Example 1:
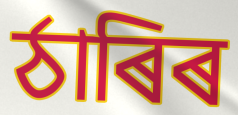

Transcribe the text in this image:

ঠাৰিৰ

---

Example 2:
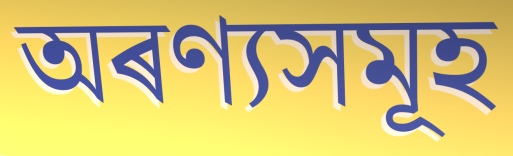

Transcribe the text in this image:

অৰণ্যসমূহ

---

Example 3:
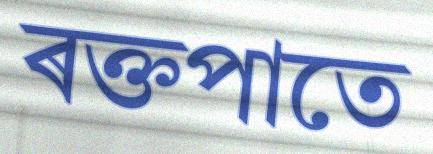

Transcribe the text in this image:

ৰক্তপাতে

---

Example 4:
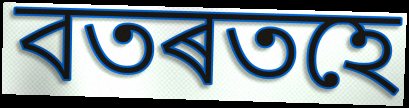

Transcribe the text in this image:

বতৰতহে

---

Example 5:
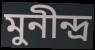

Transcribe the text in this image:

মুনীন্দ্ৰ